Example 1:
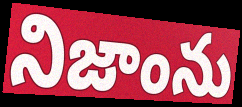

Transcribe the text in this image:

నిజాంను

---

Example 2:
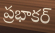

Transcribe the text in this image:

ప్రభాకర్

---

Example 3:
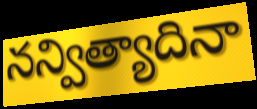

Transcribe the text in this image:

నన్విత్యాదినా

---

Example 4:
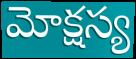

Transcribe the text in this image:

మోక్షస్య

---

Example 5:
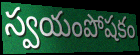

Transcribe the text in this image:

స్వయంపోషకం